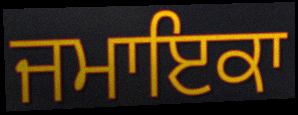
ਜਮਾਇਕਾ